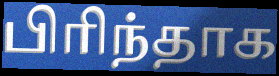
பிரிந்தாக